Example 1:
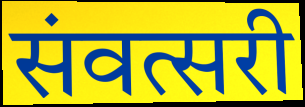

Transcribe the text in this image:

संवत्सरी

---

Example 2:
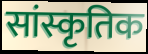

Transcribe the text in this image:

सांस्‍कृतिक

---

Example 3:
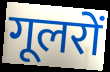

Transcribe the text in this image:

गूलरों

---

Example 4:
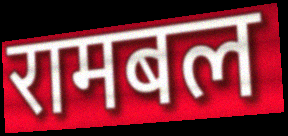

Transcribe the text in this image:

रामबल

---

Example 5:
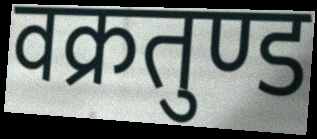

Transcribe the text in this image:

वक्रतुण्ड